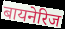
बायनेरिज